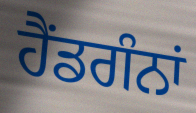
ਹੈਂਡਗੰਨਾਂ